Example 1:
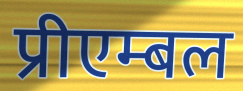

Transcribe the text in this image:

प्रीएम्बल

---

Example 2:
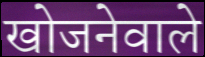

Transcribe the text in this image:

खोजनेवाले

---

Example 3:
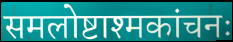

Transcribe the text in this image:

समलोष्टाश्मकांचनः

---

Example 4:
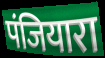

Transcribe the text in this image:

पंजियारा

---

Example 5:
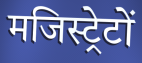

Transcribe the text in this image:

मजिस्ट्रेटों